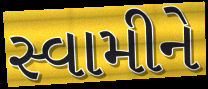
સ્વામીને